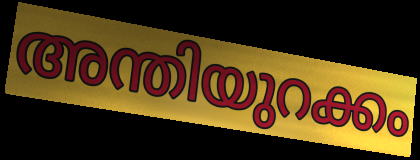
അന്തിയുറക്കം